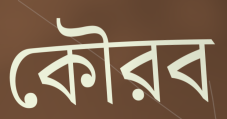
কৌরব